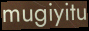
mugiyitu